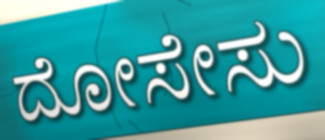
ದೋಸೇಸು